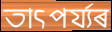
তাৎপৰ্য্যৰ